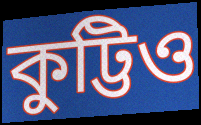
কুট্টিও